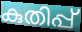
കുതിപ്പ്